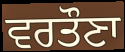
ਵਰਤੌਣਾ